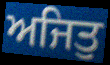
ਅਜਿਤੁ